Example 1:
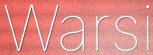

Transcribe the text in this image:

Warsi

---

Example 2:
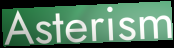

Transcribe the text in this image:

Asterism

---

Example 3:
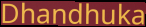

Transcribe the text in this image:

Dhandhuka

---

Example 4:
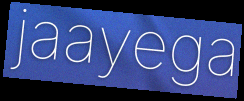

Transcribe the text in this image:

jaayega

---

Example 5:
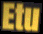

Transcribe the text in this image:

Etu